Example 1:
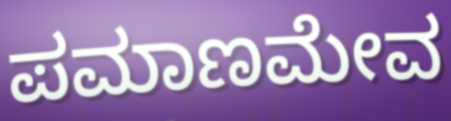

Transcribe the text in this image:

ಪಮಾಣಮೇವ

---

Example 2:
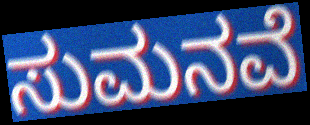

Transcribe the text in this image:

ಸುಮನವೆ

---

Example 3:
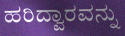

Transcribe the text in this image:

ಹರಿದ್ವಾರವನ್ನು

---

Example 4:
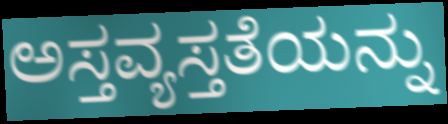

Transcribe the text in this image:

ಅಸ್ತವ್ಯಸ್ತತೆಯನ್ನು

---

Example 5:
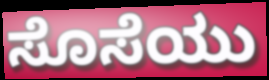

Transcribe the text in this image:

ಸೊಸೆಯು